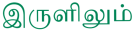
இருளிலும்